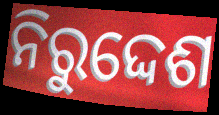
ନିରୁଦ୍ଦେଶ